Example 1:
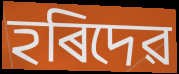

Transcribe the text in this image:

হৰিদেৱ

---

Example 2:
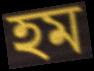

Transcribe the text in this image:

হম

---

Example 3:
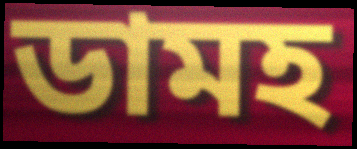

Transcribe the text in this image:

ডামহ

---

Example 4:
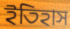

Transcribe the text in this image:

ইতিহাস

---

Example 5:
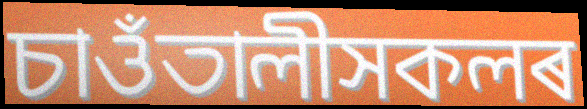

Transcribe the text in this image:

চাওঁতালীসকলৰ